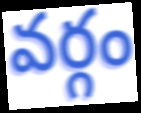
వర్గం